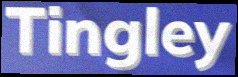
Tingley